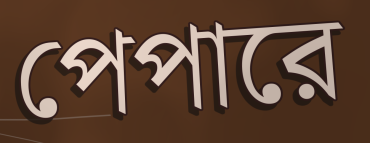
পেপারে